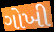
ગોખી